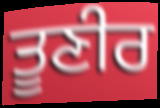
ਤੂਣੀਰ